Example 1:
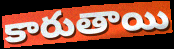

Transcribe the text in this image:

కారుతాయి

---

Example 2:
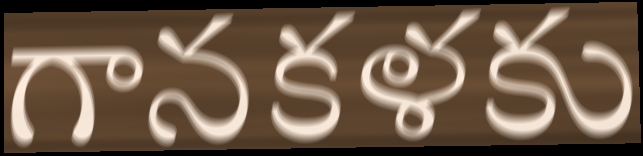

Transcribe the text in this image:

గానకళకు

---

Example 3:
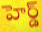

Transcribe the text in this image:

హెర్డ్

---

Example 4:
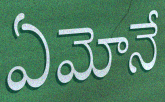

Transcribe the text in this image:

ఏమోనే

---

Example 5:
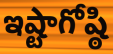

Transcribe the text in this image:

ఇష్టాగోష్ఠి